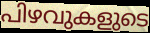
പിഴവുകളുടെ